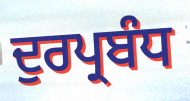
ਦੁਰਪ੍ਰਬੰਧ